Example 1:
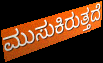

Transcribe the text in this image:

ಮುಸುಕಿರುತ್ತದೆ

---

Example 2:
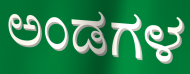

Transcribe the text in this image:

ಅಂಡಗಳ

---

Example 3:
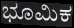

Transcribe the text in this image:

ಭೂಮಿಕ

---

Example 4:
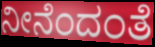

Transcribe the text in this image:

ನೀನೆಂದಂತೆ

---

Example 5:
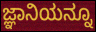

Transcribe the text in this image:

ಜ್ಞಾನಿಯನ್ನೂ